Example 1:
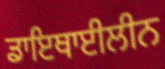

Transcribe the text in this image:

ਡਾਇਥਾਈਲੀਨ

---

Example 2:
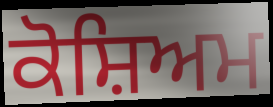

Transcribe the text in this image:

ਕੋਸ਼ਿਅਮ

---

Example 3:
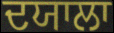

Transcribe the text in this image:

ਦਯਾਲਾ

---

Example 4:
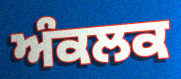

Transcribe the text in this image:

ਅੰਕਲਕ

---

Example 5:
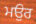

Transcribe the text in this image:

ਮਉਰ